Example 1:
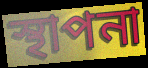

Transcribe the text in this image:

স্থাপনা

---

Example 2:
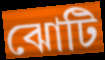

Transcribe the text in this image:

ঝোটি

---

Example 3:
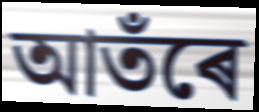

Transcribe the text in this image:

আতঁৰে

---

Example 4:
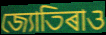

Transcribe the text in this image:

জ্যোতিৰাও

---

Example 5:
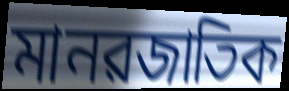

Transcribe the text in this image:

মানৱজাতিক